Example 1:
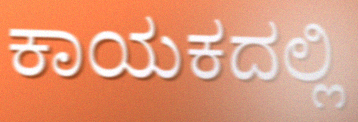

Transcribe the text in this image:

ಕಾಯಕದಲ್ಲಿ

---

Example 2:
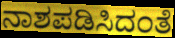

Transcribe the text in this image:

ನಾಶಪಡಿಸಿದಂತೆ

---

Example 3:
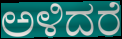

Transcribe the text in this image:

ಅಳಿದರೆ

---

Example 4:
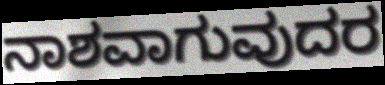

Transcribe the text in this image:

ನಾಶವಾಗುವುದರ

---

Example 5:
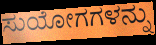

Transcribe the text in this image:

ಸುಯೋಗಗಳನ್ನು